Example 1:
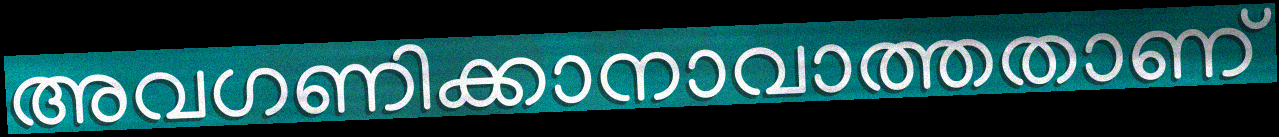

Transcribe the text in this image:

അവഗണിക്കാനാവാത്തതാണ്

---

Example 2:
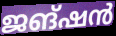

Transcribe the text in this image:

ജങ്ഷൻ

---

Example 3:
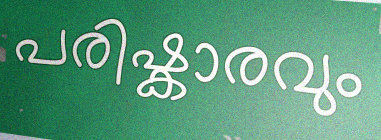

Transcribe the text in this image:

പരിഷ്കാരവും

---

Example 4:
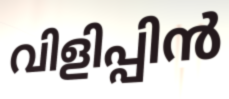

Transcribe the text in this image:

വിളിപ്പിൻ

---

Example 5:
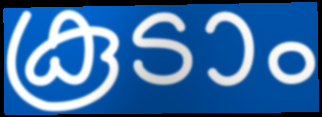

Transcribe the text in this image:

കൂടാം